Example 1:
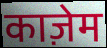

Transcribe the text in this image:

काज़ेम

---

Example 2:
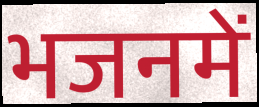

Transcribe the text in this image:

भजनमें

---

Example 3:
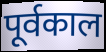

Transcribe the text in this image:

पूर्वकाल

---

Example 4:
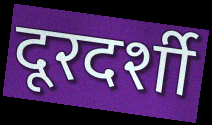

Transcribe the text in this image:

दूरदर्शी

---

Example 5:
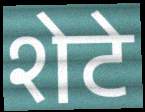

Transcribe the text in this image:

शेटे